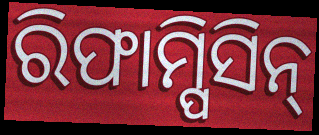
ରିଫାମ୍ପିସିନ୍